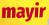
mayir